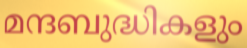
മന്ദബുദ്ധികളും